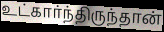
உட்கார்ந்திருந்தான்